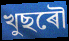
খুছৰৌ